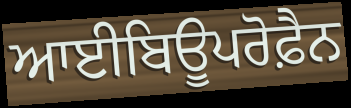
ਆਈਬਿਊਪਰੋਫ਼ੈਨ